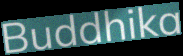
Buddhika